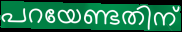
പറയേണ്ടതിന്